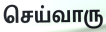
செய்வாரு